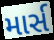
માર્સ